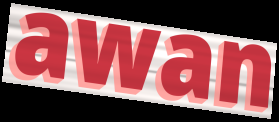
awan